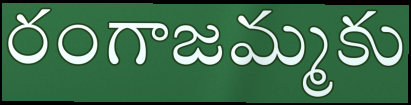
రంగాజమ్మకు